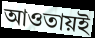
আওতায়ই